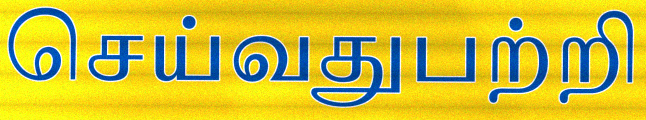
செய்வதுபற்றி